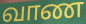
வாண